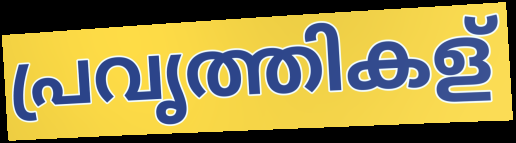
പ്രവൃത്തികള്